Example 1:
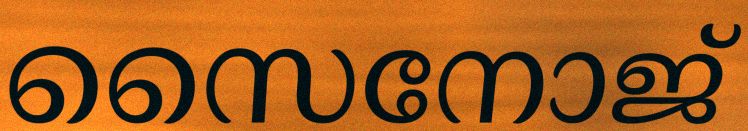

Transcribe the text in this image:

സൈനോജ്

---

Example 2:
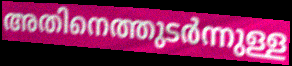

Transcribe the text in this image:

അതിനെത്തുടർന്നുള്ള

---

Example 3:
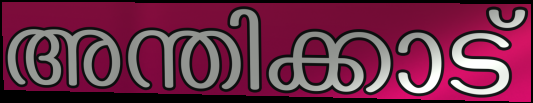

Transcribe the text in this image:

അന്തിക്കാട്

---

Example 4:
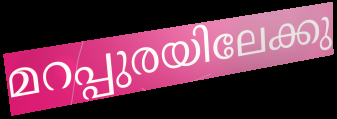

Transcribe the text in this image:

മറപ്പുരയിലേക്കു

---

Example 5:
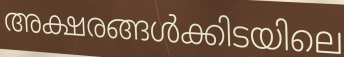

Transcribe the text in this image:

അക്ഷരങ്ങൾക്കിടയിലെ